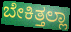
ಬೇಕಿತ್ತಲ್ಲಾ